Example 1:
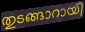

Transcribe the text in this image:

തുടങ്ങാറായി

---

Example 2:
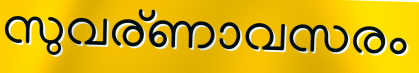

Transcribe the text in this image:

സുവര്ണാവസരം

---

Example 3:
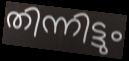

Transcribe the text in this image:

തിന്നിട്ടും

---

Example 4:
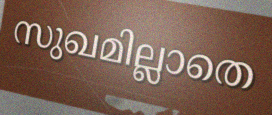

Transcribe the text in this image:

സുഖമില്ലാതെ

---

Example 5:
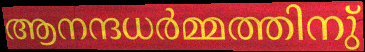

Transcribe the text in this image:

ആനന്ദധർമ്മത്തിനു്